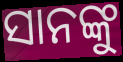
ସାନଙ୍କୁ